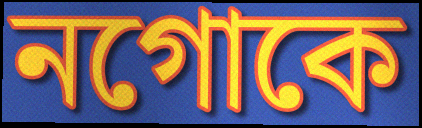
নগোকে